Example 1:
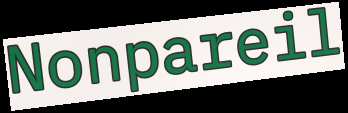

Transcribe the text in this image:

Nonpareil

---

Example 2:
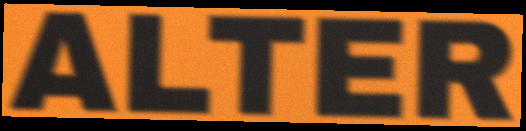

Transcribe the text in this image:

ALTER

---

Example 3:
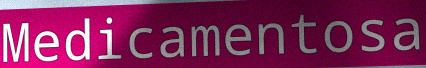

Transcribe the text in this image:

Medicamentosa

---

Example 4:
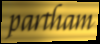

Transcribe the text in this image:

partham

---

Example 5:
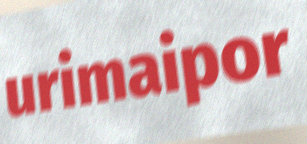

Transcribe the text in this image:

urimaipor